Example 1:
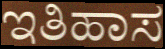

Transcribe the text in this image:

ಇತಿಹಾಸ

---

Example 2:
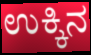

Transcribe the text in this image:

ಉಕ್ಕಿನ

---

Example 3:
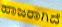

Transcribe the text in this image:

ಹಾಜರಾಗಿದೆ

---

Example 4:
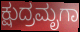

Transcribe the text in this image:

ಕ್ಷುದ್ರಮೃಗಾ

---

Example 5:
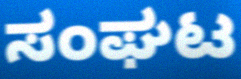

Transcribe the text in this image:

ಸಂಘಟ